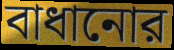
বাধানোর